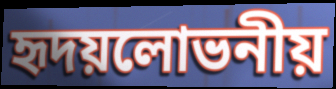
হৃদয়লোভনীয়